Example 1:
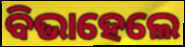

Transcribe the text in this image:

ବିଭାହେଲେ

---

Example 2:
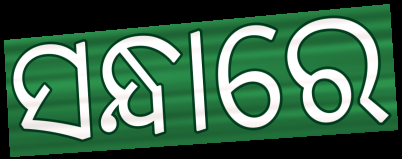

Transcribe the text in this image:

ସନ୍ଧାରେ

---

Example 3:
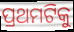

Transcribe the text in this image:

ପ୍ରଥମଟିକୁ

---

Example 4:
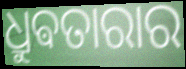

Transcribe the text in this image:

ଧ୍ରୁଵତାରାର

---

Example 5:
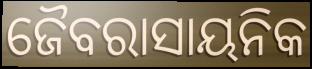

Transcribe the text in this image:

ଜୈବରାସାୟନିକ